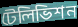
টেলিভিশন